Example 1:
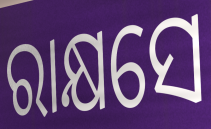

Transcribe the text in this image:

ରାକ୍ଷସେ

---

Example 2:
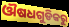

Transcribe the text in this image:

ଔଷଧଗୁଡିକରୁ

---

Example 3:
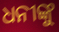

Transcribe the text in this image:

ଧନୀଙ୍କୁ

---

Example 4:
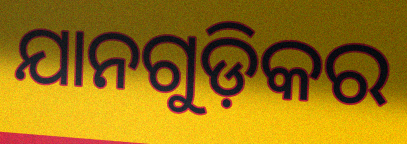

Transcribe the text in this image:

ଯାନଗୁଡ଼ିକର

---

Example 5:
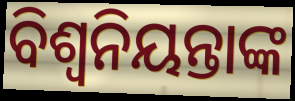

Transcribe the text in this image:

ବିଶ୍ବନିୟନ୍ତାଙ୍କ